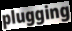
plugging